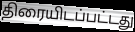
திரையிடப்பட்டது